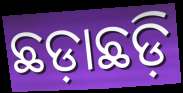
ଛଡ଼ାଛଡ଼ି